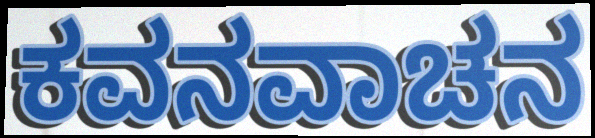
ಕವನವಾಚನ